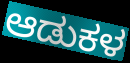
ಆಡುಕಳ